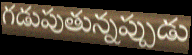
గడుపుతున్నప్పుడు